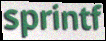
sprintf